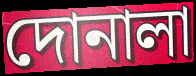
দোনালা